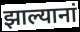
झाल्यानां